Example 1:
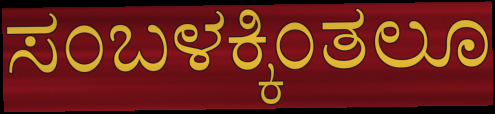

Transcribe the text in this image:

ಸಂಬಳಕ್ಕಿಂತಲೂ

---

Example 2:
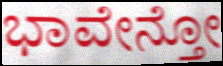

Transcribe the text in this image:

ಭಾವೇನ್ತೋ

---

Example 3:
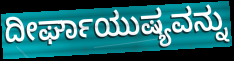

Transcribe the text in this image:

ದೀರ್ಘಾಯುಷ್ಯವನ್ನು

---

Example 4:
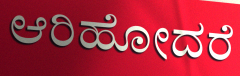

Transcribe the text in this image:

ಆರಿಹೋದರೆ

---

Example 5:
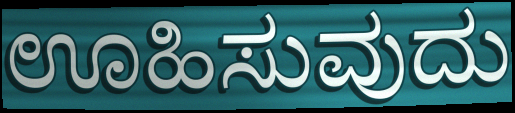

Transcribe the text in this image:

ಊಹಿಸುವುದು